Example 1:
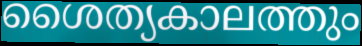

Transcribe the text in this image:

ശൈത്യകാലത്തും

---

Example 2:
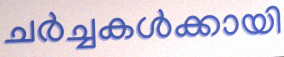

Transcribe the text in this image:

ചർച്ചകൾക്കായി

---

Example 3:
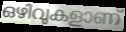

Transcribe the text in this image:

ഒഴിവുകളാണ്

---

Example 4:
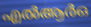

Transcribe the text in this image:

എൽആർഒ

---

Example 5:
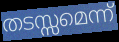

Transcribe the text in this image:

തടസ്സമെന്ന്